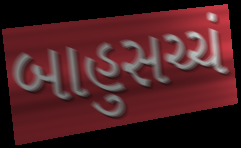
બાહુસચ્ચં